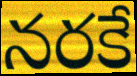
నరకే